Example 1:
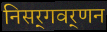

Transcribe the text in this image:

निसर्गवर्णन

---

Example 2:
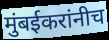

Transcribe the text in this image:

मुंबईकरांनीच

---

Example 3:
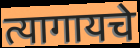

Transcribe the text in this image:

त्यागायचे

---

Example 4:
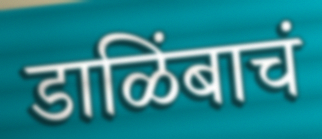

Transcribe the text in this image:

डाळिंबाचं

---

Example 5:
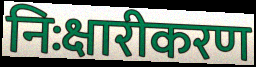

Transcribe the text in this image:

निःक्षारीकरण